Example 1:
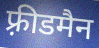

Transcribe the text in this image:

फ़्रीडमैन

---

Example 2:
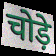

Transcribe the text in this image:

चोड़े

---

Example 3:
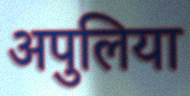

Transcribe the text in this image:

अपुलिया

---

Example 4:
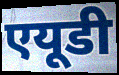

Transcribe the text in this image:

एयूडी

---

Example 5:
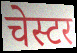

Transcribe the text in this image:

चेस्टर